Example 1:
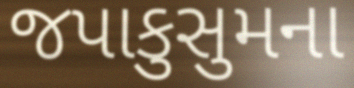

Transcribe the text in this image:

જપાકુસુમના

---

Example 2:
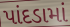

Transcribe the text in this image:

પાંદડામાં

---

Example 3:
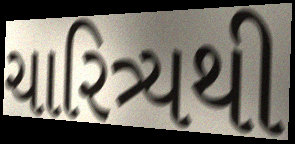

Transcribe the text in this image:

ચારિત્ર્યથી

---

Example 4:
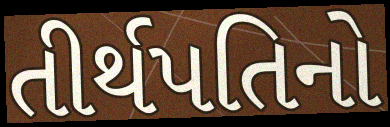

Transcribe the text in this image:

તીર્થપતિનો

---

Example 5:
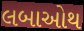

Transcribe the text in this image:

લબાઓથ